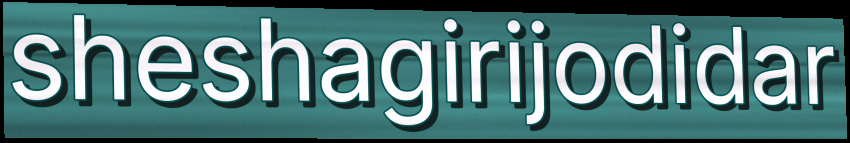
sheshagirijodidar